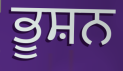
ਭੂਸ਼ਨ